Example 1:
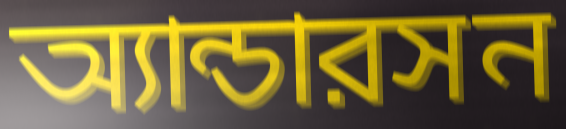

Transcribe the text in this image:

অ্যান্ডারসন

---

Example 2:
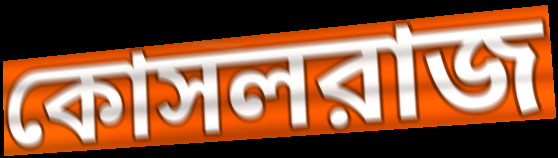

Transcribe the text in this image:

কোসলরাজ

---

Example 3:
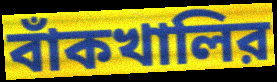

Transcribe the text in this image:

বাঁকখালির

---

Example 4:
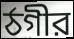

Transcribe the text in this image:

ঠগীর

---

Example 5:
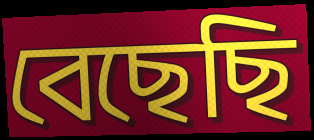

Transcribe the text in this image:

বেছেছি